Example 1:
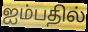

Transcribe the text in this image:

ஐம்பதில்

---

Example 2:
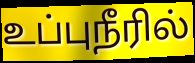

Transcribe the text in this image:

உப்புநீரில்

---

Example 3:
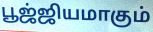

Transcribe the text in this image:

பூஜ்ஜியமாகும்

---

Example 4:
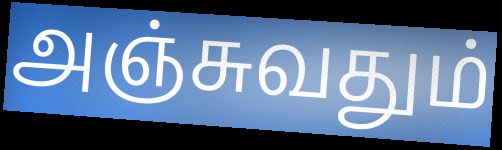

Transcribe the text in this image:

அஞ்சுவதும்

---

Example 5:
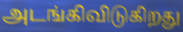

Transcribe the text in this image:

அடங்கிவிடுகிறது